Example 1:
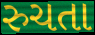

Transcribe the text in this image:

રુચતા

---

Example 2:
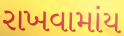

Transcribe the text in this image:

રાખવામાંય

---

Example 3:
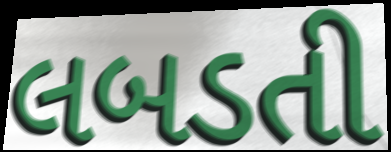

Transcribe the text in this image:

લબડતી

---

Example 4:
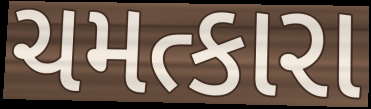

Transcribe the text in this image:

ચમત્કારા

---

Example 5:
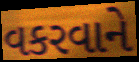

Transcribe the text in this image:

વકરવાને